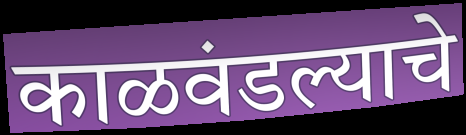
काळवंडल्याचे